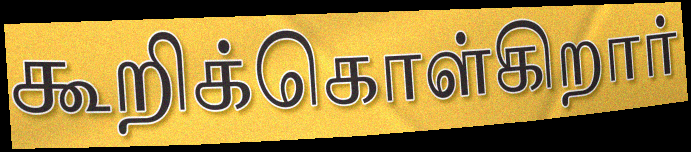
கூறிக்கொள்கிறார்